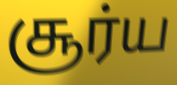
சூர்ய